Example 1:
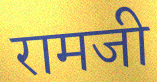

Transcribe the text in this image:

रामजी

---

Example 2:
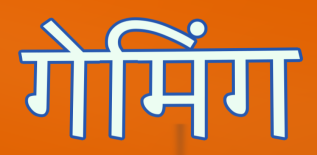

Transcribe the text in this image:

गेमिंग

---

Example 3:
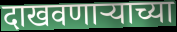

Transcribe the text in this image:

दाखवणाऱ्याच्या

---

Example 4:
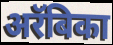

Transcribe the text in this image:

अरॅबिका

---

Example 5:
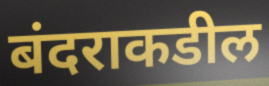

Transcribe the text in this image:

बंदराकडील